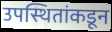
उपस्थितांकडून